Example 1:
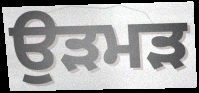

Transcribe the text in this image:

ਉੜਮੜ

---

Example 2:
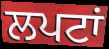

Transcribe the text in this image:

ਲਪਟਾਂ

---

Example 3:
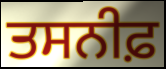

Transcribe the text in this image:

ਤਸਨੀਫ਼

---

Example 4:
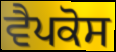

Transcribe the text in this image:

ਵੈਪਕੋਸ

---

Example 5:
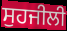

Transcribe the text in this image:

ਸੁਹਜੀਲੀ